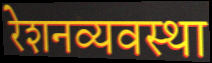
रेशनव्यवस्था